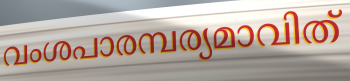
വംശപാരമ്പര്യമാവിത്